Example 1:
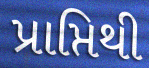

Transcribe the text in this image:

પ્રાપ્તિથી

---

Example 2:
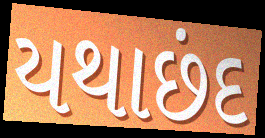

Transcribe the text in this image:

યથાછંદ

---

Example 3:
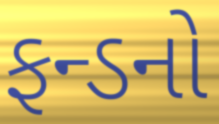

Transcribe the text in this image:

ફન્ડનો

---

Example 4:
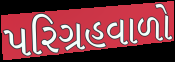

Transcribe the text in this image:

પરિગ્રહવાળો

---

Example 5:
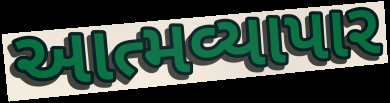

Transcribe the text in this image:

આત્મવ્યાપાર